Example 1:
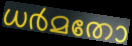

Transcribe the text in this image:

ധർമതോ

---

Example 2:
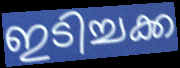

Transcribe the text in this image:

ഇടിച്ചക്ക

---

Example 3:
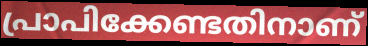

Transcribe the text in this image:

പ്രാപിക്കേണ്ടതിനാണ്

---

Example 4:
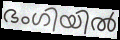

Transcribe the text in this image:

ഭംഗിയിൽ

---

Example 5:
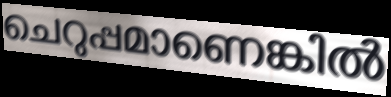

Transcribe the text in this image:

ചെറുപ്പമാണെങ്കിൽ